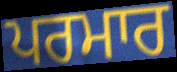
ਪਰਮਾਰ